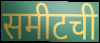
समीटची